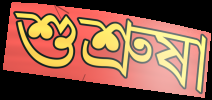
শুশ্ৰুষা